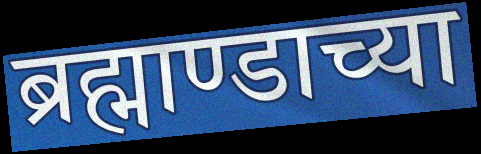
ब्रह्माण्डाच्या